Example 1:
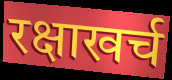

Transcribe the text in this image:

रक्षाखर्च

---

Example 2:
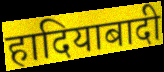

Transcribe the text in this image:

हादियाबादी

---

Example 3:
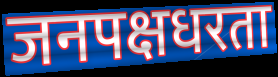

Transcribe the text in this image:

जनपक्षधरता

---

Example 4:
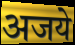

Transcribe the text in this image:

अजये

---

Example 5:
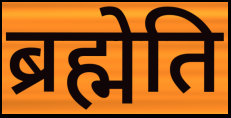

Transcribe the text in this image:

ब्रह्मेति